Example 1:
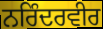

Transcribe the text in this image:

ਨਰਿੰਦਰਵੀਰ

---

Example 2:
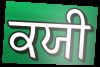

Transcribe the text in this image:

ਕਯੀ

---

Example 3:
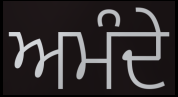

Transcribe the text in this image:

ਅਮੰਦੇ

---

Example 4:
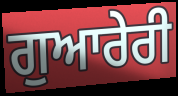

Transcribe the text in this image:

ਗੁਆਰੇਰੀ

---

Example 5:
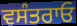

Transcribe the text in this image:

ਵਸੰਤਰਾਓ